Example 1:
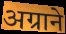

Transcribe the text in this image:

अग्राने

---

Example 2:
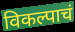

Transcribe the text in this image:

विकल्पाचं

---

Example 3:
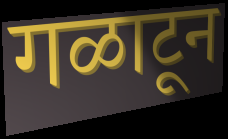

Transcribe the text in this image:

गळाटून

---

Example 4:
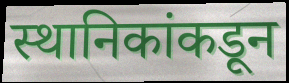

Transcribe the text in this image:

स्थानिकांकडून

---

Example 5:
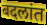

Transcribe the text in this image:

बदलांत